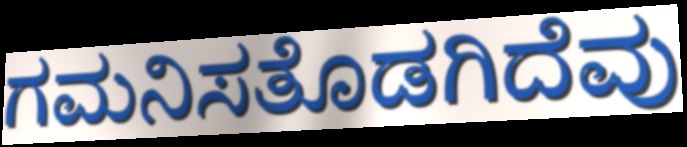
ಗಮನಿಸತೊಡಗಿದೆವು